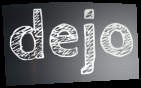
dejo